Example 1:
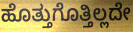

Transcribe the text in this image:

ಹೊತ್ತುಗೊತ್ತಿಲ್ಲದೇ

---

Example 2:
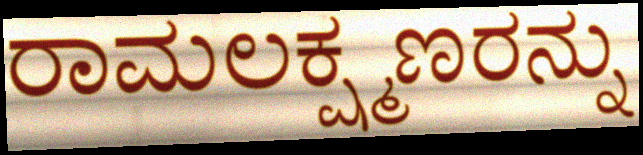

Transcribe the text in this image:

ರಾಮಲಕ್ಷ್ಮಣರನ್ನು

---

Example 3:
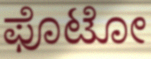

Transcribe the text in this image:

ಫೊಟೋ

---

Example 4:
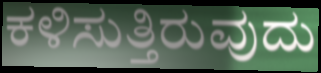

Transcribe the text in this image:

ಕಳಿಸುತ್ತಿರುವುದು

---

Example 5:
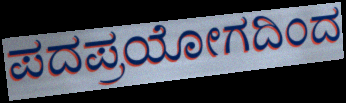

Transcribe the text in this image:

ಪದಪ್ರಯೋಗದಿಂದ